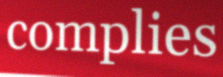
complies